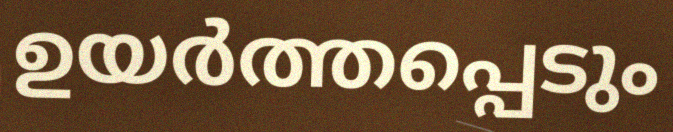
ഉയർത്തപ്പെടും